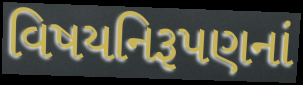
વિષયનિરૂપણનાં